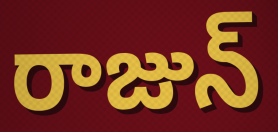
రాజున్